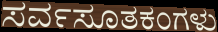
ಸರ್ವಸೂತಕಂಗಳು